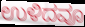
ಉಳಿದವೂ